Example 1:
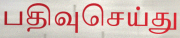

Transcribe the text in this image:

பதிவுசெய்து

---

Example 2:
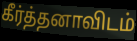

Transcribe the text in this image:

கீர்த்தனாவிடம்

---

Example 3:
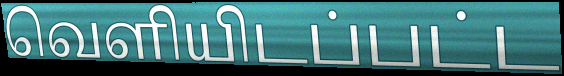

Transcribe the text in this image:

வெளியிடப்பட்ட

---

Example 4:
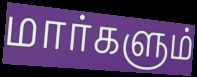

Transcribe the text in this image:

மார்களும்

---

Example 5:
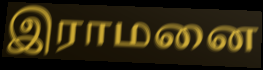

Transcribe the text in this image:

இராமனை